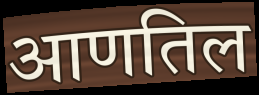
आणतिल